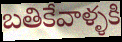
బతికేవాళ్ళకి